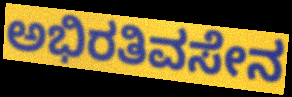
ಅಭಿರತಿವಸೇನ